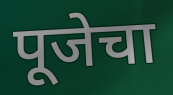
पूजेचा